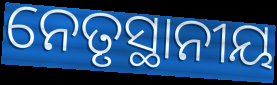
ନେତୃସ୍ଥାନୀୟ